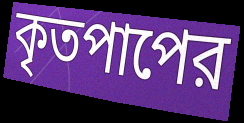
কৃতপাপের